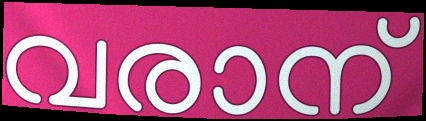
വരാന്